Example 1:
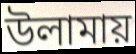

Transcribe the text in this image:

উলামায়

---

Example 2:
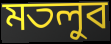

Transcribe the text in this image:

মতলুব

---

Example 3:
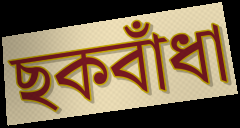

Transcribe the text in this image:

ছকবাঁধা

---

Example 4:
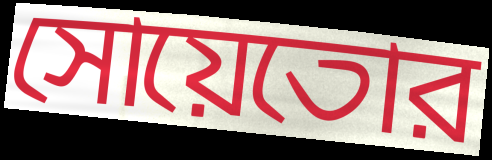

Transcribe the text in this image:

সোয়েতোর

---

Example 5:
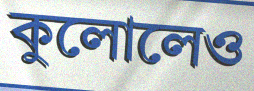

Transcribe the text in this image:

কুলোলেও